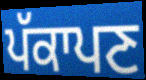
ਪੱਕਾਪਣ